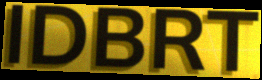
IDBRT